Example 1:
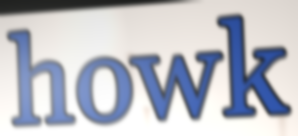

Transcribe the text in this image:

howk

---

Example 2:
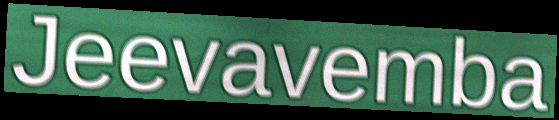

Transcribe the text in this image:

Jeevavemba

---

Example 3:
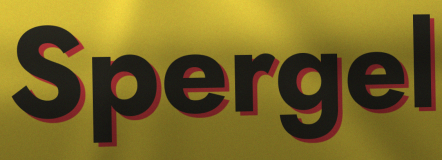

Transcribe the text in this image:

Spergel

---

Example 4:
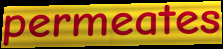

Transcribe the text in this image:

permeates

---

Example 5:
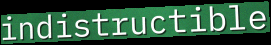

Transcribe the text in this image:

indistructible